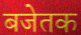
बजेतक